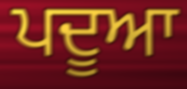
ਪਦੂਆ